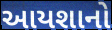
આયશાનો